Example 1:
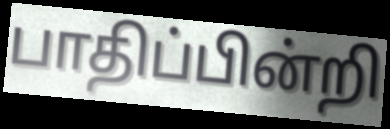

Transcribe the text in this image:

பாதிப்பின்றி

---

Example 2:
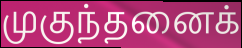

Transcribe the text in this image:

முகுந்தனைக்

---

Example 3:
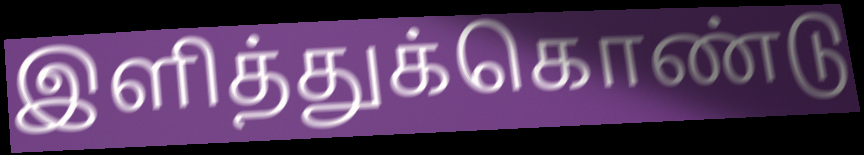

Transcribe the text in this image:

இளித்துக்கொண்டு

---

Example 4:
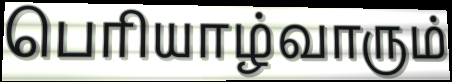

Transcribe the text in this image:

பெரியாழ்வாரும்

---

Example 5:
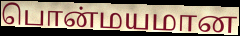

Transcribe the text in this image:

பொன்மயமான